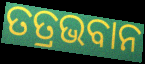
ତତ୍ରଭବାନ